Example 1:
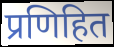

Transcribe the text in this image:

प्रणिहित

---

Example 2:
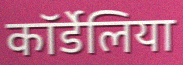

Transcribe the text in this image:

कॉर्डेलिया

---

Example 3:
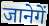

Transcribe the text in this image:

जानेगें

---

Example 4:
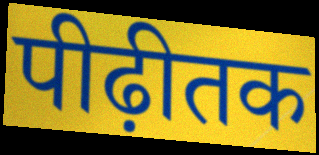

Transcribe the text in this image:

पीढ़ीतक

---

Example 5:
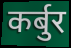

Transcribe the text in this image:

कर्बुर